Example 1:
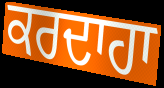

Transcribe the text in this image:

ਕਰਦਾਹਾ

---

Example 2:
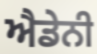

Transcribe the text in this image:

ਐਡੇਨੀ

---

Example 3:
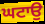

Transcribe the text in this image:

ਘਟਾਉ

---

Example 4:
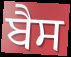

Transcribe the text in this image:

ਬੈਸ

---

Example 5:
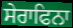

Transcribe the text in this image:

ਸੇਰਾਫਿਨਾ